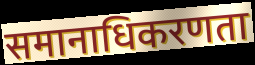
समानाधिकरणता